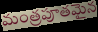
మంత్రపూతమైన